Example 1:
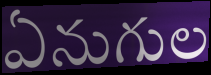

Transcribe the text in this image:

ఏనుగుల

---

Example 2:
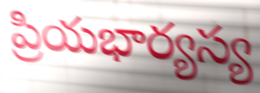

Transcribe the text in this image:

ప్రియభార్యస్య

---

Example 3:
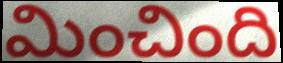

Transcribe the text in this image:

మించింది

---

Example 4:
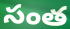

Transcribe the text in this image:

సంత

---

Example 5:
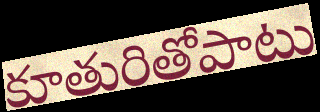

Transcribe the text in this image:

కూతురితోపాటు